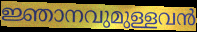
ജ്ഞാനവുമുള്ളവൻ